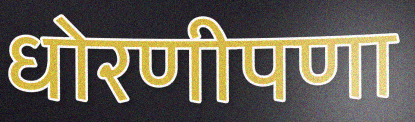
धोरणीपणा